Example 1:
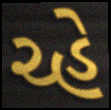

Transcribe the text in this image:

ચ્હે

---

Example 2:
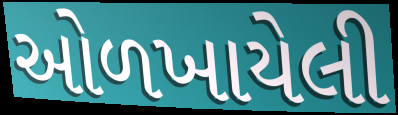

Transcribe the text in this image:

ઓળખાયેલી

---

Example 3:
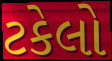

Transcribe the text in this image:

ટકેલો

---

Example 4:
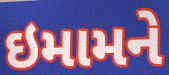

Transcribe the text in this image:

ઇમામને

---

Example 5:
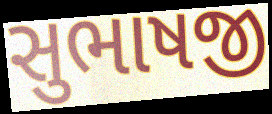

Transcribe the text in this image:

સુભાષજી